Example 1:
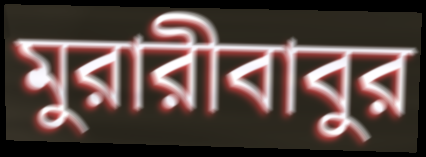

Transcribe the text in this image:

মুরারীবাবুর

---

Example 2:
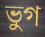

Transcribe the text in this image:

ভুগ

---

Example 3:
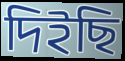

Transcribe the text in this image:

দিইছি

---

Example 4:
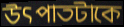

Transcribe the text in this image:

উৎপাতটাকে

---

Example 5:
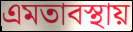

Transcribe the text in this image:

এমতাবস্থায়